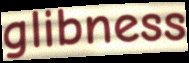
glibness